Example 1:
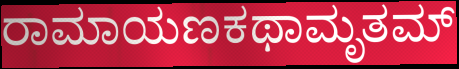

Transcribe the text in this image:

ರಾಮಾಯಣಕಥಾಮೃತಮ್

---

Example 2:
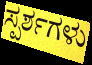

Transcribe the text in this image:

ಸ್ಪರ್ಶಗಳು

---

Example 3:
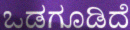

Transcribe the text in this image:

ಒಡಗೂಡಿದೆ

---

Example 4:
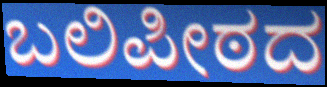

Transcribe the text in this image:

ಬಲಿಪೀಠದ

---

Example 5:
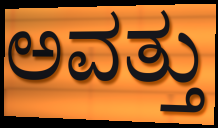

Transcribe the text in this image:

ಅವತ್ತು